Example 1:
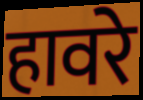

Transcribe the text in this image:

हावरे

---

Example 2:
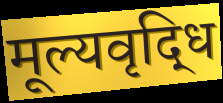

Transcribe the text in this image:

मूल्यवृद्धि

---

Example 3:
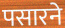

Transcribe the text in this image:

पसारने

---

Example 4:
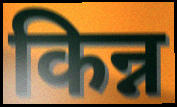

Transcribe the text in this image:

किन्न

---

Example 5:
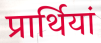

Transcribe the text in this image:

प्रार्थियां